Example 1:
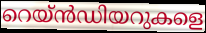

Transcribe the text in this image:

റെയ്ൻഡിയറുകളെ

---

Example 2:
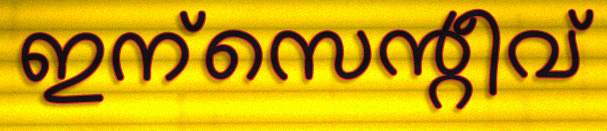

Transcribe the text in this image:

ഇന്സെന്റീവ്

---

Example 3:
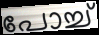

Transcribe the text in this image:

പോച്ച്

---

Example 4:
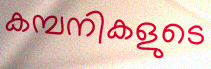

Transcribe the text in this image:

കമ്പനികളുടെ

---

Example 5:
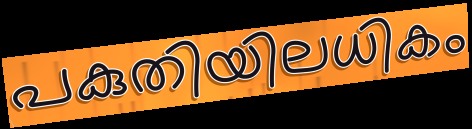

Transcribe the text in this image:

പകുതിയിലധികം